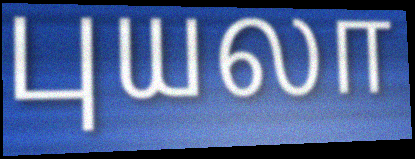
புயலா